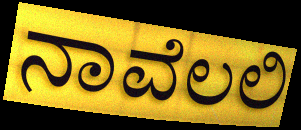
ನಾವೆಲಲಿ